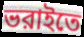
ভরাইতে